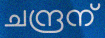
ചന്ദ്രന്